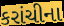
કરાંચીના